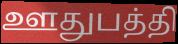
ஊதுபத்தி